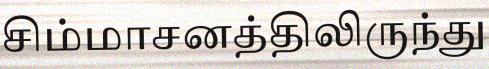
சிம்மாசனத்திலிருந்து